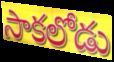
సాకలోడు